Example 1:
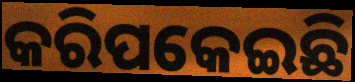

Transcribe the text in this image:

କରିପକେଇଛି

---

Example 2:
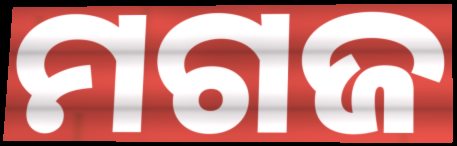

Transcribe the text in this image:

ମଗଜ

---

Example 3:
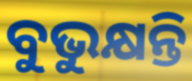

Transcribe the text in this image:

ବୁଭୁକ୍ଷନ୍ତି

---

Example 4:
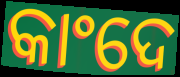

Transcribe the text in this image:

କାଂଦେ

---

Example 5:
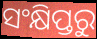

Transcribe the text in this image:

ସଂକ୍ଷିପ୍ତରୁ